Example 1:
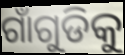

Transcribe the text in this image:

ଗାଁଗୁଡିକୁ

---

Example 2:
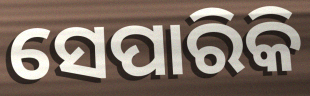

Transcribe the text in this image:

ସେପାରିକି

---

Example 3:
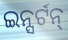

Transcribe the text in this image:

ଇନ୍ସର୍ଟନ୍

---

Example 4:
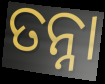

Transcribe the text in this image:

ତନ୍ନା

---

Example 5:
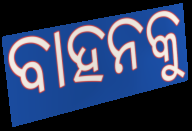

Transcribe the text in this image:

ବାହନକୁ